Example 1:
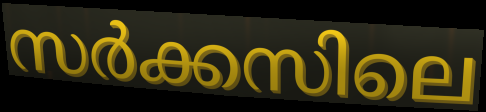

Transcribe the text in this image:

സർക്കസിലെ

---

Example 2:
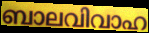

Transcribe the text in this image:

ബാലവിവാഹ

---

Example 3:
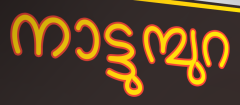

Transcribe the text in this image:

നാട്ടുമ്പുറ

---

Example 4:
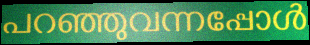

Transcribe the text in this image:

പറഞ്ഞുവന്നപ്പോൾ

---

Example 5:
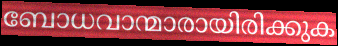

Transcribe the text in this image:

ബോധവാന്മാരായിരിക്കുക